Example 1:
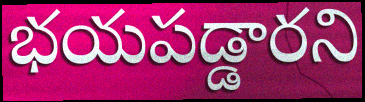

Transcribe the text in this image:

భయపడ్డారని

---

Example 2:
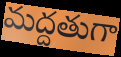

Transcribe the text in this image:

మద్దతుగా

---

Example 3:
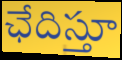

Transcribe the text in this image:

ఛేదిస్తూ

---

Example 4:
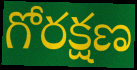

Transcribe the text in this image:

గోరక్షణ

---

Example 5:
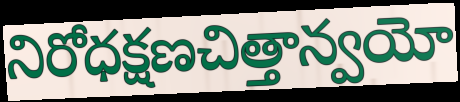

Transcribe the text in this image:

నిరోధక్షణచిత్తాన్వయో